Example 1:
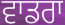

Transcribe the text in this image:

ਵਾਡਰਾ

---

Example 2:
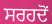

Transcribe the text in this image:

ਸਰਹਦੋਂ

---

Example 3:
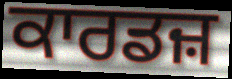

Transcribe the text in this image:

ਕਾਰਡਜ਼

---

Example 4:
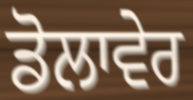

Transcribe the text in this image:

ਡੋਲਾਵੇਰ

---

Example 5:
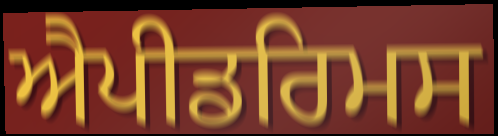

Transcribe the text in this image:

ਐਪੀਡਰਿਮਸ